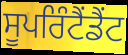
ਸੂਪਰਿੰਟੈਂਡੈਂਟ